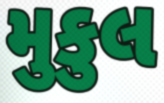
મુકુલ